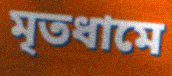
মৃতধামে